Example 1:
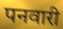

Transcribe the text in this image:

पनवारी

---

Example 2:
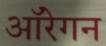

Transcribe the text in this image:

ऑरेगन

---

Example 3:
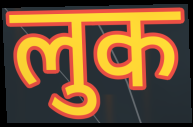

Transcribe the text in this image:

लुक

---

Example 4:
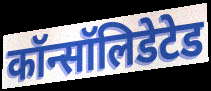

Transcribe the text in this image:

कॉन्सॉलिडेटेड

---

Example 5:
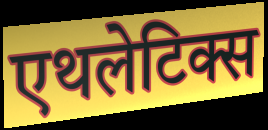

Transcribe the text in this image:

एथलेटिक्स